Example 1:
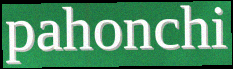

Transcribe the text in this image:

pahonchi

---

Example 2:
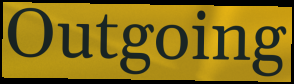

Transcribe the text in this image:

Outgoing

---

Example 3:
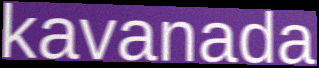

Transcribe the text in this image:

kavanada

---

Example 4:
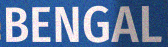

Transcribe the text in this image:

BENGAL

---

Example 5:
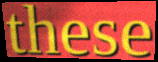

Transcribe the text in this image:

these